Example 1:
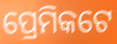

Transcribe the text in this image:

ପ୍ରେମିକଟେ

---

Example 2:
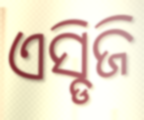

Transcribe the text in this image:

ଏସ୍ଡିଜି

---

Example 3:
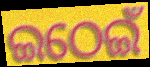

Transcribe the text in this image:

ଇଠେଇଁ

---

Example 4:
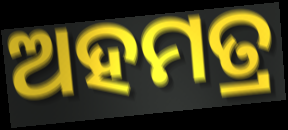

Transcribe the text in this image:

ଅହମତ୍ର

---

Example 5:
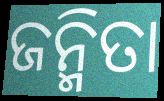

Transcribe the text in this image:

ଜନ୍ମିତା